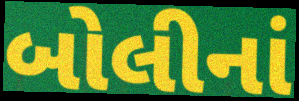
બોલીનાં